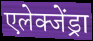
एलेक्जेंड्रा